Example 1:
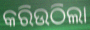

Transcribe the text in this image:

କରିଉଠିଲା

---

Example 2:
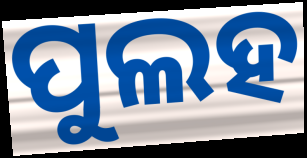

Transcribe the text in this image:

ପୁଲହ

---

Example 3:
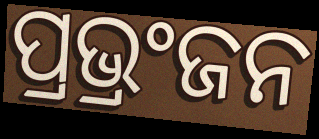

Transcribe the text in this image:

ପ୍ରଭ୍ରଂଜନ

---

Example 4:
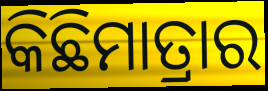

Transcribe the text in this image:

କିଛିମାତ୍ରାର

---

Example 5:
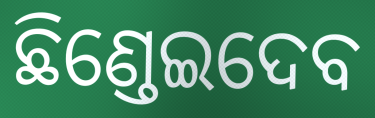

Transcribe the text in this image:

ଛିଣ୍ଡେଇଦେବ